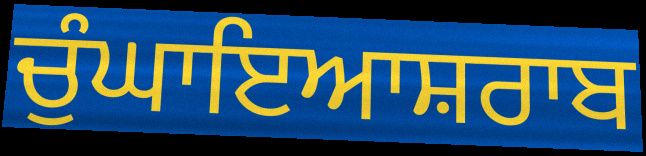
ਚੁੰਘਾਇਆਸ਼ਰਾਬ